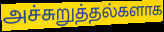
அச்சுறுத்தல்களாக